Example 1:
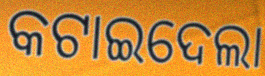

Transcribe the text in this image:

କଟାଇଦେଲା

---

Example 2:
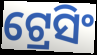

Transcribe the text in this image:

ଟ୍ରେସିଂ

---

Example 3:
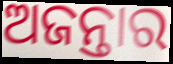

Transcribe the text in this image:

ଅଜନ୍ତାର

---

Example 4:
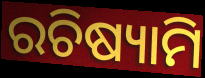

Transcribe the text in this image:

ରଚିଷ୍ୟାମି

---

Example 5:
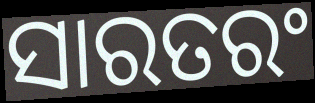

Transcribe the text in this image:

ସାରତରଂ